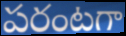
పరంటగా